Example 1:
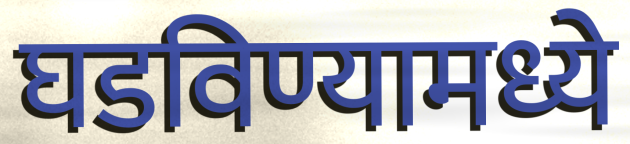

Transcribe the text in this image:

घडविण्यामध्ये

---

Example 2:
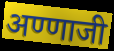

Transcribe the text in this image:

अण्णाजी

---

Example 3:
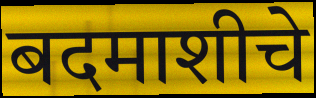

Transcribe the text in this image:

बदमाशीचे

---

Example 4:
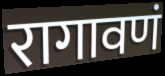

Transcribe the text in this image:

रागावणं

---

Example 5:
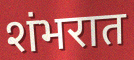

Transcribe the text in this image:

शंभरात